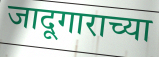
जादूगाराच्या